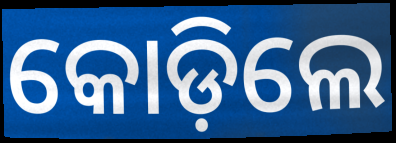
କୋଡ଼ିଲେ